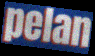
pelan